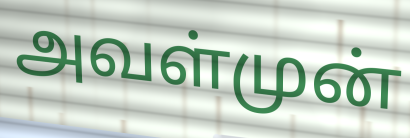
அவள்முன்